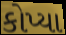
કોપ્યા